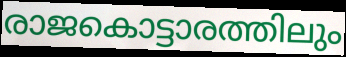
രാജകൊട്ടാരത്തിലും